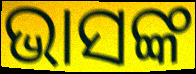
ଭାସଙ୍କ